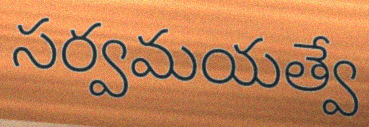
సర్వమయత్వే